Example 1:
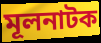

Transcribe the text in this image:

মূলনাটক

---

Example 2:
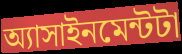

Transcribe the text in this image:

অ্যাসাইনমেন্টটা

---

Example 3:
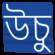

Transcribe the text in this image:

উচু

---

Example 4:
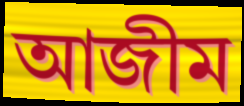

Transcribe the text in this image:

আজীম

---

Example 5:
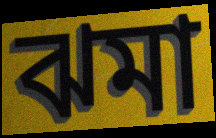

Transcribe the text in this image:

ঝমা